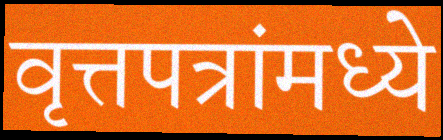
वृत्तपत्रांमध्ये